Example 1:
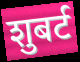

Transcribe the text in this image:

शुबर्ट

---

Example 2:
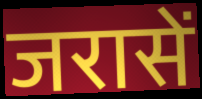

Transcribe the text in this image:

जरासें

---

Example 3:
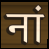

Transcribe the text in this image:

नां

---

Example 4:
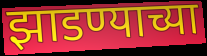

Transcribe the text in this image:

झाडण्याच्या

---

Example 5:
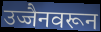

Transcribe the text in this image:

उज्जैनवरून